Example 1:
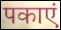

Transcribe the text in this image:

पकाएं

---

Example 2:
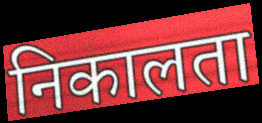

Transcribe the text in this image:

निकालता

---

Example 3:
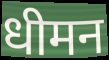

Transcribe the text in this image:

धीमन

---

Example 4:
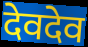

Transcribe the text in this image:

देवदेव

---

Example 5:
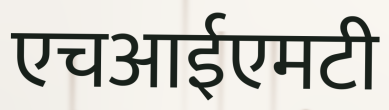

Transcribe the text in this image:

एचआईएमटी